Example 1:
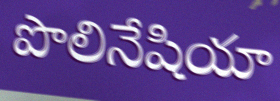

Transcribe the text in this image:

పొలినేషియా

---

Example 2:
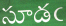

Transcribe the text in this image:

సూడఁ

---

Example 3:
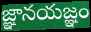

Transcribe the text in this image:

జ్ఞానయజ్ఞం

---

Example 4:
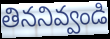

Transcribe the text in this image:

తిననివ్వండి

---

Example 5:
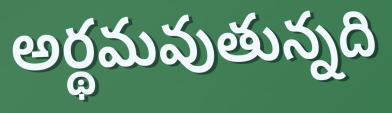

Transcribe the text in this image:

అర్థమవుతున్నది